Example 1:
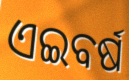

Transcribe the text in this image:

ଏଇବର୍ଷ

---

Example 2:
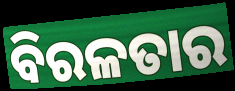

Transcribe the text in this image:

ବିରଳତାର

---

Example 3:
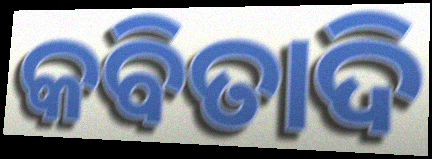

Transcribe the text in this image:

କବିତାଦି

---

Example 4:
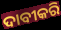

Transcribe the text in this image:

ଦାବୀକରି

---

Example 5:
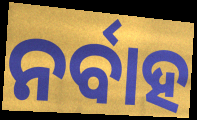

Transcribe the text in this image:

ନର୍ବାହ